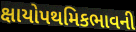
ક્ષાયોપથમિકભાવની